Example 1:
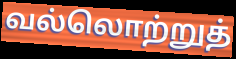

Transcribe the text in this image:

வல்லொற்றுத்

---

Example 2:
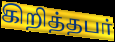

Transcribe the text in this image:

கிறித்தபர்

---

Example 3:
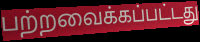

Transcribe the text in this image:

பற்றவைக்கப்பட்டது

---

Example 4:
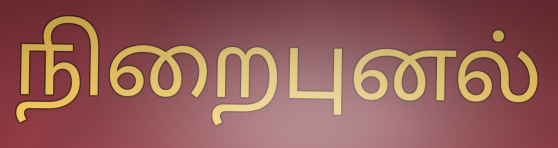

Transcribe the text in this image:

நிறைபுனல்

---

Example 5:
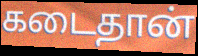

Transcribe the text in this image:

கடைதான்